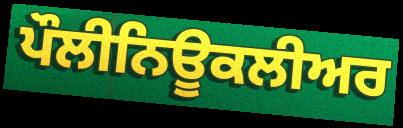
ਪੌਲੀਨਿਊਕਲੀਅਰ